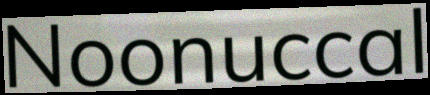
Noonuccal